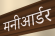
मनीआर्डर